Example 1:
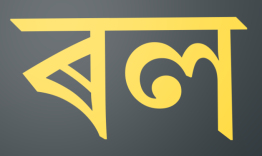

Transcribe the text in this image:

ৰল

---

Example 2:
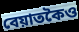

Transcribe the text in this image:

বেয়াতকৈও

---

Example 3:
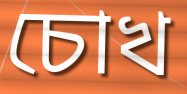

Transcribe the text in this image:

চোখ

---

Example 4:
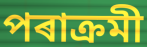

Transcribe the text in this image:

পৰাক্ৰমী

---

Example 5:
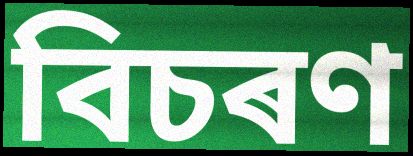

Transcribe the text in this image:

বিচৰণ